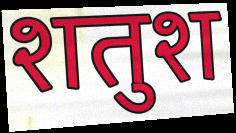
शतुश